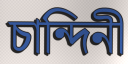
চান্দিনী